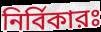
নির্বিকারঃ